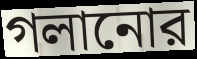
গলানোর